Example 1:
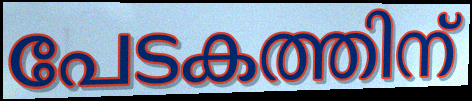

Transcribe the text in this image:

പേടകത്തിന്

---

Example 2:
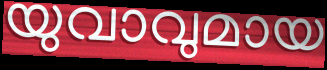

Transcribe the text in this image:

യുവാവുമായ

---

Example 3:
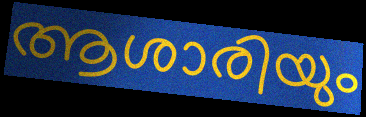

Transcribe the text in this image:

ആശാരിയും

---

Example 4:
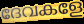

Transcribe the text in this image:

ദേവകളേ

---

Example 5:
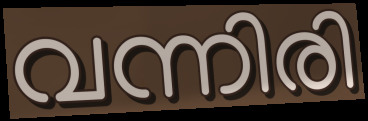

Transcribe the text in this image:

വന്നിരി